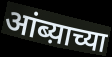
आंब्य़ाच्या